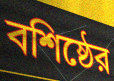
বশিষ্ঠের